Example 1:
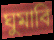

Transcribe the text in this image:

ঘুমাবি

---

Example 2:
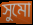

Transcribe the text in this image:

সুমো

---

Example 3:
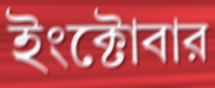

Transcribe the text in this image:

ইংক্টোবার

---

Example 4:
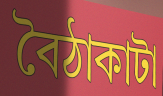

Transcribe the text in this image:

বৈঠাকাটা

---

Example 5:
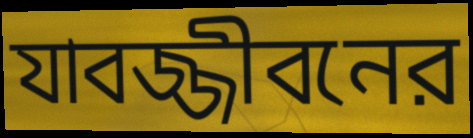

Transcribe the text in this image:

যাবজ্জীবনের